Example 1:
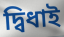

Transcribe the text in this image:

দ্বিধাই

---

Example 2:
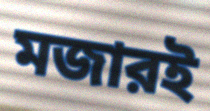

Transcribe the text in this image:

মজারই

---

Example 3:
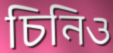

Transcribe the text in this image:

চিনিও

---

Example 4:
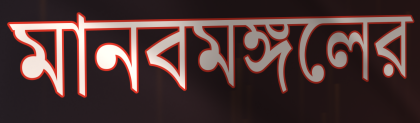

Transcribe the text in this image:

মানবমঙ্গলের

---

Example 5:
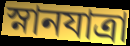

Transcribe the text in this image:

স্নানযাত্রা